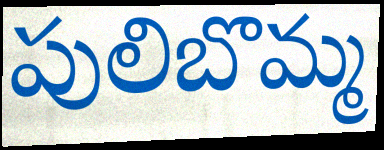
పులిబొమ్మ